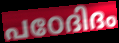
പഠേദിദം